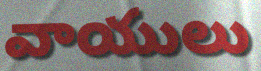
వాయులు